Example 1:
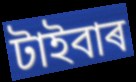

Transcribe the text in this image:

টাইবাৰ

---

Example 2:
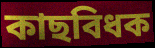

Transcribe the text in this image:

কাছবিধক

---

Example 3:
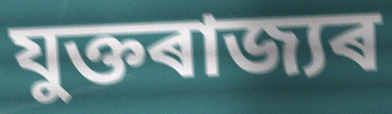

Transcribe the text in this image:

যুক্তৰাজ্যৰ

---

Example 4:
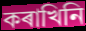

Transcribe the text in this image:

কৰাখিনি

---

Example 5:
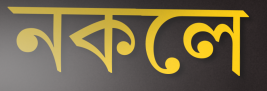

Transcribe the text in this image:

নকলে